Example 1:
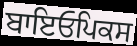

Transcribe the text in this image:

ਬਾਇਓਪਿਕਸ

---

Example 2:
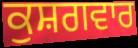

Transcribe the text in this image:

ਕੁਸ਼ਗਵਾਰ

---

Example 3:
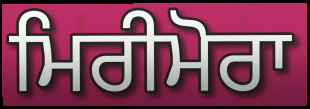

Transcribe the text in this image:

ਮਿਰੀਮੋਰਾ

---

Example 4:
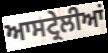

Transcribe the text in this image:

ਆਸਟ੍ਰੇਲੀਆਂ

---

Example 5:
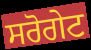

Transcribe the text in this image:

ਸਰੋਗੇਟ